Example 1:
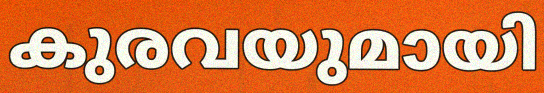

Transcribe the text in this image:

കുരവയുമായി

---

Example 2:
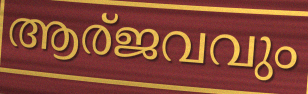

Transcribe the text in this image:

ആര്ജവവും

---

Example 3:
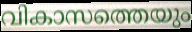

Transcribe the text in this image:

വികാസത്തെയും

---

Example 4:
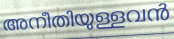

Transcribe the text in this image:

അനീതിയുള്ളവൻ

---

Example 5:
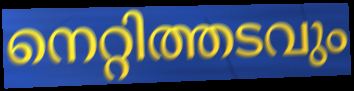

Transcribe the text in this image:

നെറ്റിത്തടവും